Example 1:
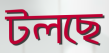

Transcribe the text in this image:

টলছে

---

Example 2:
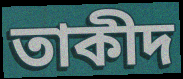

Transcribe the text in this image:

তাকীদ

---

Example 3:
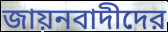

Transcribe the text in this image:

জায়নবাদীদের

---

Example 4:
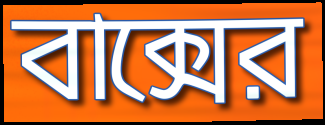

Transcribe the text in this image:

বাক্সের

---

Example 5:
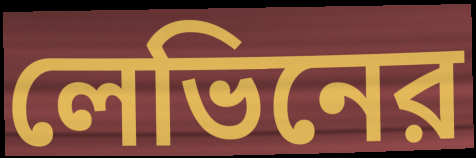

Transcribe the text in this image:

লেভিনের